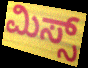
ಮಿಸ್ಸ್